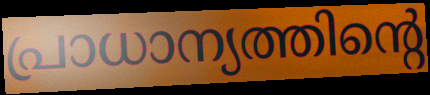
പ്രാധാന്യത്തിന്റെ